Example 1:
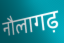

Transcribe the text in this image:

नौलागढ़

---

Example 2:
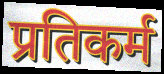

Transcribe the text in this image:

प्रतिकर्म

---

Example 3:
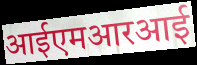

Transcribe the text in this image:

आईएमआरआई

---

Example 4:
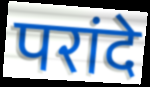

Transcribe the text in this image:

परांदे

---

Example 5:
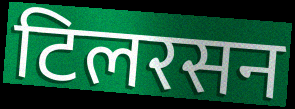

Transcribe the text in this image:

टिलरसन